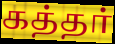
கத்தர்